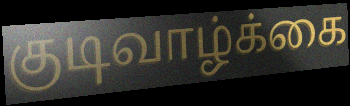
குடிவாழ்க்கை